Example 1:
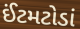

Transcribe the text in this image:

ઈંટમટોડાં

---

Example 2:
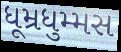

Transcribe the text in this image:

ધૂમ્રધુમ્મસ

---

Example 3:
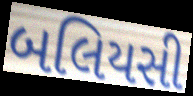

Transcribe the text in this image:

બલિયસી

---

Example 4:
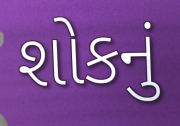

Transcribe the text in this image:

શોકનું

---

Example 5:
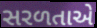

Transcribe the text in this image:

સરળતાએ